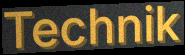
Technik